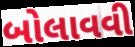
બોલાવવી